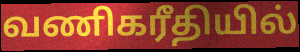
வணிகரீதியில்